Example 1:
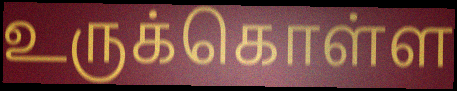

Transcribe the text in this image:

உருக்கொள்ள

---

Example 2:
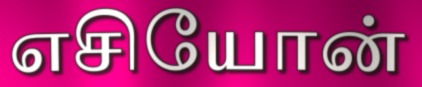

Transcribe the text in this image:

எசியோன்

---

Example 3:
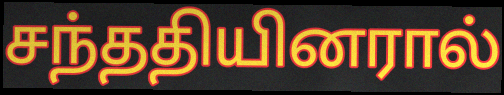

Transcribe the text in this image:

சந்ததியினரால்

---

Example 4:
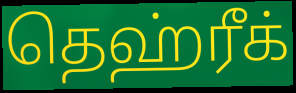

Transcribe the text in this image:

தெஹ்ரீக்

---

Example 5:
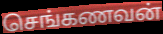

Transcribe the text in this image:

செங்கணவன்